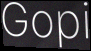
Gopi